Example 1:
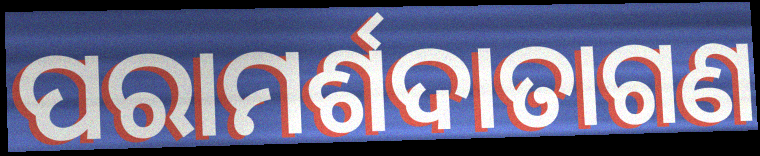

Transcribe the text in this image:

ପରାମର୍ଶଦାତାଗଣ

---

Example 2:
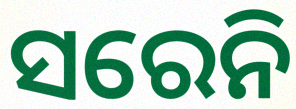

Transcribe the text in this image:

ସରେନି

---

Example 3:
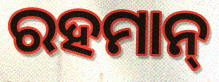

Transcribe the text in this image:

ରହମାନ୍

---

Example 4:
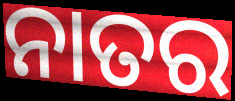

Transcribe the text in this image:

ନାତର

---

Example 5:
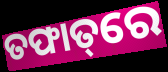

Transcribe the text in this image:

ତଫାତ୍‌ରେ